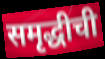
समृद्धीची